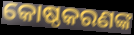
କୋଷ୍ଠକରଣଙ୍କ